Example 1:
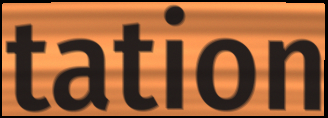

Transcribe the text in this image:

tation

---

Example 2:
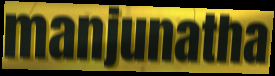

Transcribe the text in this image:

manjunatha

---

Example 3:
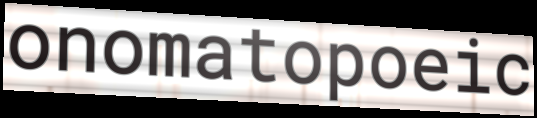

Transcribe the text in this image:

onomatopoeic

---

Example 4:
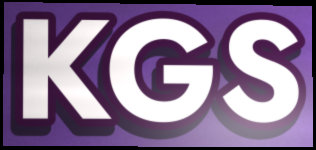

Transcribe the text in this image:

KGS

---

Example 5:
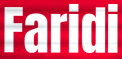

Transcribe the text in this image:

Faridi